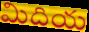
మిదియ